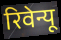
रिवेन्यू